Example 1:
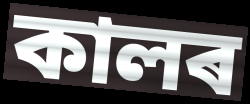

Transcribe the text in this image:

কালৰ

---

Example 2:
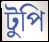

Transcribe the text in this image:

টুপি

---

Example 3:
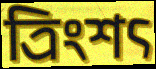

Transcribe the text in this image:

ত্ৰিংশৎ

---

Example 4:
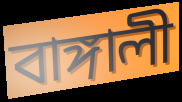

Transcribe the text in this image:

বাঙ্গালী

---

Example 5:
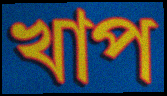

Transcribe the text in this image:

খাপ